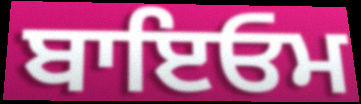
ਬਾਇਓਮ